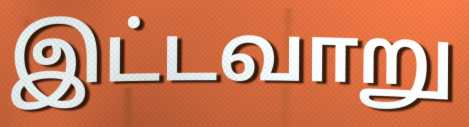
இட்டவாறு